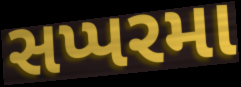
સપ્પરમા